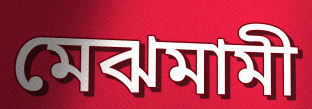
মেঝমামী